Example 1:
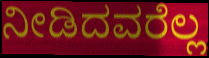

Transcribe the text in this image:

ನೀಡಿದವರೆಲ್ಲ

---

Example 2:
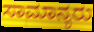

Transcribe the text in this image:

ಸಾಮಾನ್ಯರು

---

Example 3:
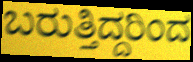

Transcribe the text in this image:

ಬರುತ್ತಿದ್ದರಿಂದ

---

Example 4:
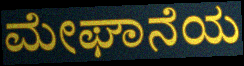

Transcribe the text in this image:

ಮೇಘಾನೆಯ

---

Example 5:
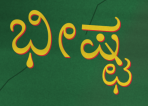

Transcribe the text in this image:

ಭೀಷ್ಟ